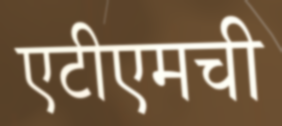
एटीएमची